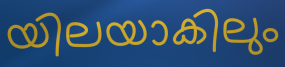
യിലയാകിലും